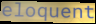
eloquent